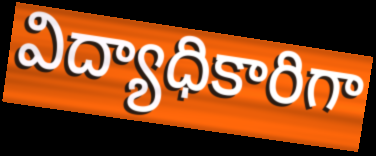
విద్యాధికారిగా